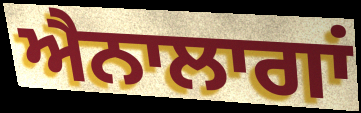
ਐਨਾਲਾਗਾਂ